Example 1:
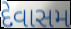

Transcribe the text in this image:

દેવાસમ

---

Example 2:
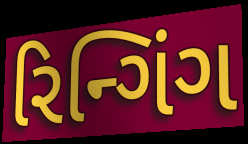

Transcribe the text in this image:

રિન્ગિંગ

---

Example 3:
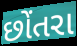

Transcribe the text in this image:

છોંતરા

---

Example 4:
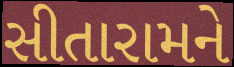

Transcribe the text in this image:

સીતારામને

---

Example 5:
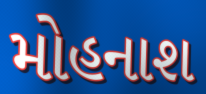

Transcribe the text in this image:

મોહનાશ